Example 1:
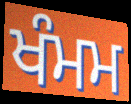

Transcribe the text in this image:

ਖੰਮਮ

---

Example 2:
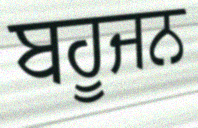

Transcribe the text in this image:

ਬਹੂਜਨ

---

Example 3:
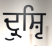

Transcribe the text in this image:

ਦ੍ਰੁਸ਼੍ਟਿ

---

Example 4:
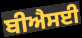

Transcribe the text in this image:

ਬੀਐਸਈ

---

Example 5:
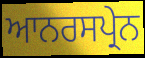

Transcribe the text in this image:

ਆਨਰਸਪ੍ਰੇਨ